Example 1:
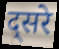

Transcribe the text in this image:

द्सरे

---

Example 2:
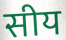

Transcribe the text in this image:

सीय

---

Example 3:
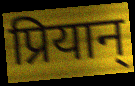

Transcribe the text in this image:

प्रियान्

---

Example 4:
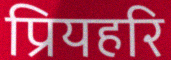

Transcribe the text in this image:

प्रियहरि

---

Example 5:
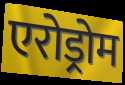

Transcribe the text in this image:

एरोड्रोम